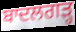
ਬਾਦਲਗੜ੍ਹ